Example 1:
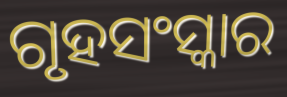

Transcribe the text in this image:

ଗୃହସଂସ୍କାର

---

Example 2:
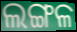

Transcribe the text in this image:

ଲଙ୍ଗଳ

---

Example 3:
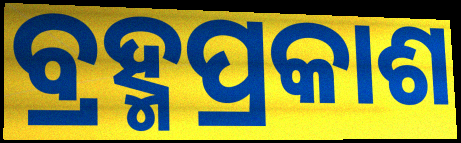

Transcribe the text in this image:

ବ୍ରହ୍ମପ୍ରକାଶ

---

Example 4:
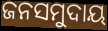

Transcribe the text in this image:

ଜନସମୁଦାୟ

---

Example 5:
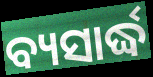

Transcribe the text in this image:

ବ୍ୟସାର୍ଦ୍ଧ